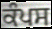
ਕੰਪਸ